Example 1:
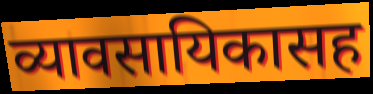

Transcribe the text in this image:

व्यावसायिकासह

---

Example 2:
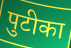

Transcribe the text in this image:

पुटीका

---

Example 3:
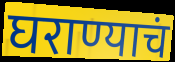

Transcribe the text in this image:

घराण्याचं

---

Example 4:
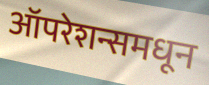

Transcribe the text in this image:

ऑपरेशन्समधून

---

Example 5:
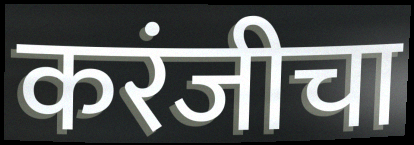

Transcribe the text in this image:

करंजीचा